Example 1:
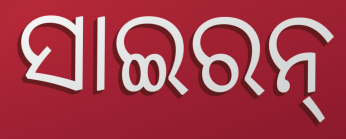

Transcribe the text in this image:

ସାଇରନ୍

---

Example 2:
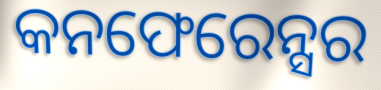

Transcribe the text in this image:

କନଫେରେନ୍ସର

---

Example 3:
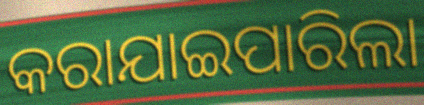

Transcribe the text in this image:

କରାଯାଇପାରିଲା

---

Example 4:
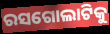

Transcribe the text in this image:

ରସଗୋଲାଟିକୁ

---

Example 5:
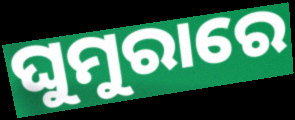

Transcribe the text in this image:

ଘୁମୁରାରେ